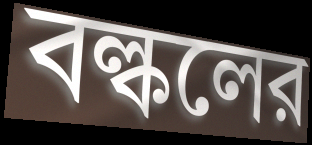
বল্কলের